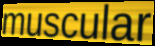
muscular